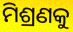
ମିଶ୍ରଣକୁ